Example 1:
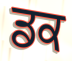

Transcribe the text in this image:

ਡਕ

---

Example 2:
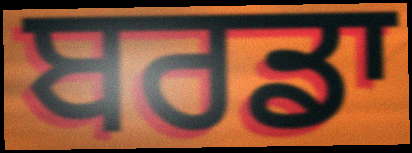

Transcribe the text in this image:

ਬਰਡਾ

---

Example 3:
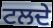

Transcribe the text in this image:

ਟਲਦੇ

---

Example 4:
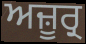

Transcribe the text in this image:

ਅਜ਼ੂਰ੍ਰ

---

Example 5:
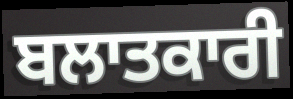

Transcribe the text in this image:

ਬਲਾਤਕਾਰੀ